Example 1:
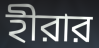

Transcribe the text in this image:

হীরার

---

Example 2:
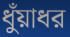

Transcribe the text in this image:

ধুঁয়াধর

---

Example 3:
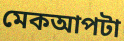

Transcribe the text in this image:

মেকআপটা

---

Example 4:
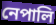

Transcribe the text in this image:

নেপালি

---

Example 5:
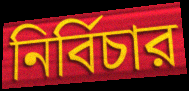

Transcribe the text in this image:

নির্বিচার